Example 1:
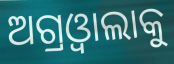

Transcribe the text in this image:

ଅଗ୍ରଓ୍ୱାଲାକୁ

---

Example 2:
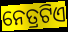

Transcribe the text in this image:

ନେତ୍ରଟିଏ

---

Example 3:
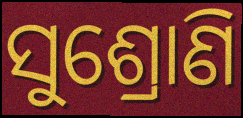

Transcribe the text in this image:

ସୁଶ୍ରୋଣି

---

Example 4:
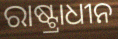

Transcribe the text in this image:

ରାଷ୍ଟ୍ରାଧୀନ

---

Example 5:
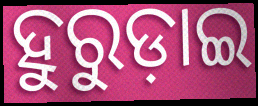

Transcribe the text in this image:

ହୁରୁଡ଼ାଇ